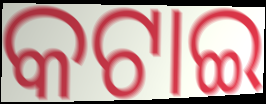
କଟାଇ